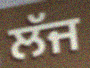
ਲੱਜ